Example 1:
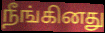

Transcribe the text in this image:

நீங்கினது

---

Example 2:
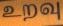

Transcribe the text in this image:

உறவு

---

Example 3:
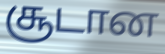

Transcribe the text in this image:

சூடான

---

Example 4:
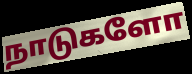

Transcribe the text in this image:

நாடுகளோ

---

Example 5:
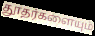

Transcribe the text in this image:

தூதர்களையும்